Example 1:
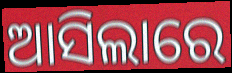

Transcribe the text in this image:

ଆସିଲାରେ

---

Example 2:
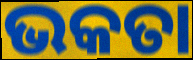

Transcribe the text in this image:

ଭକତା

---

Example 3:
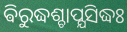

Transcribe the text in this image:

ଵିରୁଦ୍ଧଶ୍ଚାପ୍ଯସିଦ୍ଧଃ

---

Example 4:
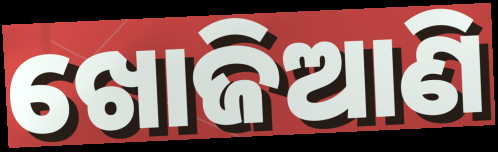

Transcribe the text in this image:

ଖୋଜିଆଣି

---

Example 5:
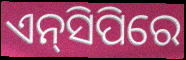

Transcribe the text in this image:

ଏନ୍‌ସିପିରେ